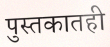
पुस्तकातही